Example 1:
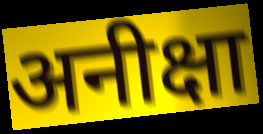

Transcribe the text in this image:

अनीक्षा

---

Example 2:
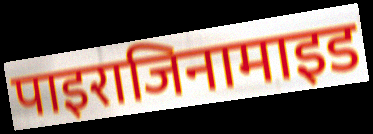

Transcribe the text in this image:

पाइराजिनामाइड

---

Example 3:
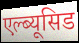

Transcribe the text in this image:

एल्ब्यूसिड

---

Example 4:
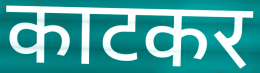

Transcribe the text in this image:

काटकर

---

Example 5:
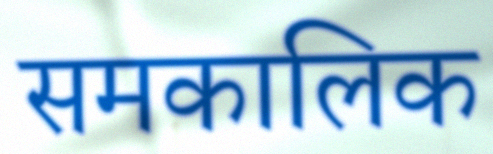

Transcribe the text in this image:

समकालिक